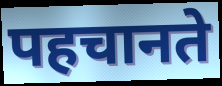
पहचानते